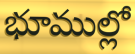
భూముల్లో